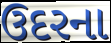
ઉદરના